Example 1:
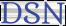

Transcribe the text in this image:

DSN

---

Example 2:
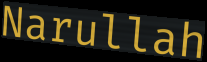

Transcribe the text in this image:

Narullah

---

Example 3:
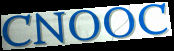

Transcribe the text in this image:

CNOOC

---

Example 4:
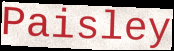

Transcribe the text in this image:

Paisley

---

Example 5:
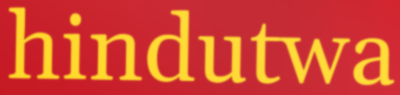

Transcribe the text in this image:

hindutwa